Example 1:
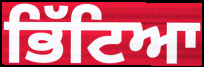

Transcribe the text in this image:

ਭਿੱਟਿਆ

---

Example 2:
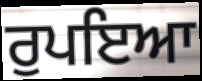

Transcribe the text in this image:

ਰੁਪਇਆ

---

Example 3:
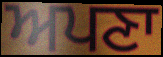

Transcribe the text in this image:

ਅਪਣਾ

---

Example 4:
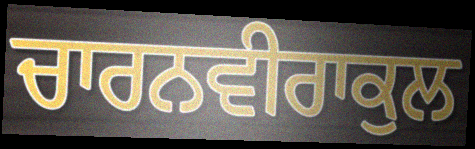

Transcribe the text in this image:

ਚਾਰਨਵੀਰਾਕੁਲ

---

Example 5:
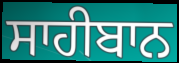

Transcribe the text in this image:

ਸਾਹੀਬਾਨ